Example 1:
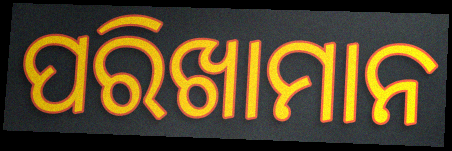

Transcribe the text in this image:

ପରିଖାମାନ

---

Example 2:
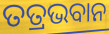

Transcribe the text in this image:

ତତ୍ରଭବାନ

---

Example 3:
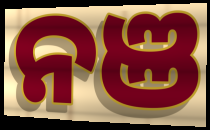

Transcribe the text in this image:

ନଞ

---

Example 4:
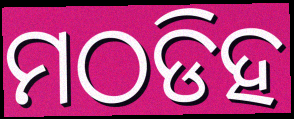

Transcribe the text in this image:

ମଠଡିହ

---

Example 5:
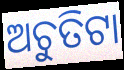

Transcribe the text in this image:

ଅଚୁତିଟା